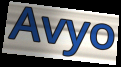
Avyo